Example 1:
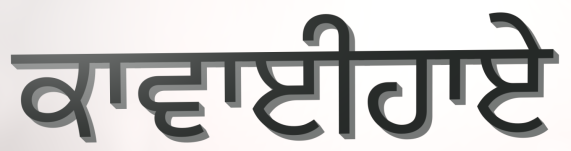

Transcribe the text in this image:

ਕਾਵਾਈਹਾਏ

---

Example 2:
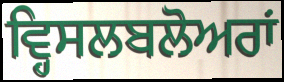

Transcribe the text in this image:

ਵ੍ਹਿਸਲਬਲੋਅਰਾਂ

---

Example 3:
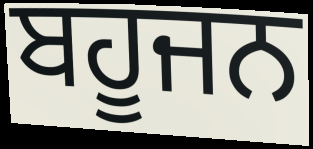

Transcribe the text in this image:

ਬਹੂਜਨ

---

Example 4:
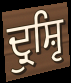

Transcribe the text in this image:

ਦ੍ਰੁਸ਼੍ਟਿ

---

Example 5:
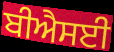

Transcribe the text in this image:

ਬੀਐਸਈ